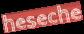
heseche